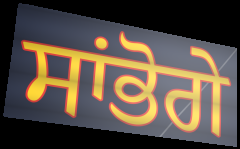
ਸਾਂਭੋਗੇ